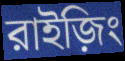
রাইজ়িং